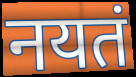
नयतं